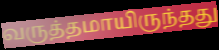
வருத்தமாயிருந்தது